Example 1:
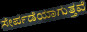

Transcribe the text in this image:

ಸೇರ್ಪಡೆಯಾಗುತ್ತವೆ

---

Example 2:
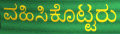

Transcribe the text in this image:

ವಹಿಸಿಕೊಟ್ಟರು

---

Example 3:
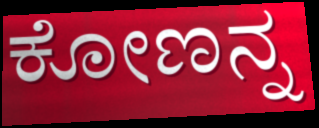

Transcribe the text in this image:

ಕೋಣನ್ನ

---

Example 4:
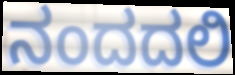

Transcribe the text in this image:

ನಂದದಲಿ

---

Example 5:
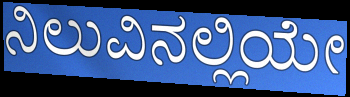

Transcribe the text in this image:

ನಿಲುವಿನಲ್ಲಿಯೇ